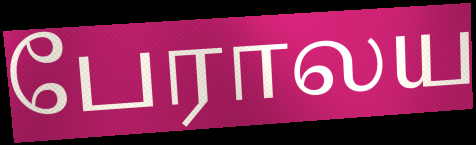
பேராலய